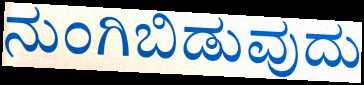
ನುಂಗಿಬಿಡುವುದು